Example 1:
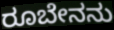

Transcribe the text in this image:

ರೂಬೇನನು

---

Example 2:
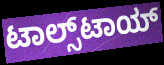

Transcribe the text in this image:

ಟಾಲ್ಸ್‌ಟಾಯ್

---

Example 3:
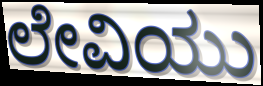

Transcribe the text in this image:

ಲೇವಿಯು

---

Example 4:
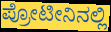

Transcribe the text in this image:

ಪ್ರೋಟೀನಿನಲ್ಲಿ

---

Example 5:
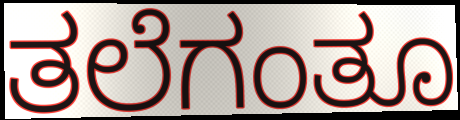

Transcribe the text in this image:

ತಲೆಗಂತೂ